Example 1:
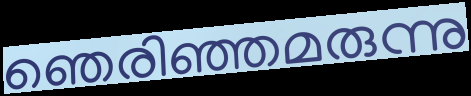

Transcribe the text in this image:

ഞെരിഞ്ഞമരുന്നു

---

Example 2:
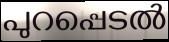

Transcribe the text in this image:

പുറപ്പെടൽ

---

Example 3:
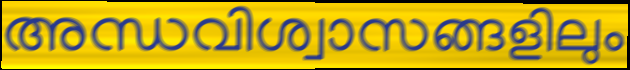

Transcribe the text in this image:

അന്ധവിശ്വാസങ്ങളിലും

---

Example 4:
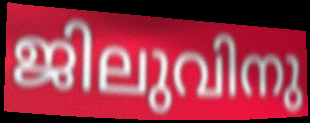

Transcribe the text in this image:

ജിലുവിനു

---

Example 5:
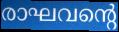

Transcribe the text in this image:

രാഘവന്റെ